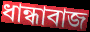
ধান্ধাবাজ